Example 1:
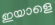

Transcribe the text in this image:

ഇയാളെ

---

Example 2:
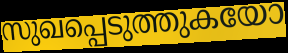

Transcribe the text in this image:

സുഖപ്പെടുത്തുകയോ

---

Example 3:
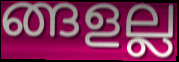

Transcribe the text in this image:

ങ്ങളല്ല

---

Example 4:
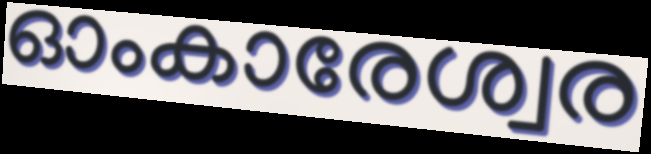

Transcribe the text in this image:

ഓംകാരേശ്വര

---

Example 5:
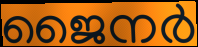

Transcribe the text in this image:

ജൈനർ